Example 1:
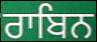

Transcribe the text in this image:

ਰਾਬਿਨ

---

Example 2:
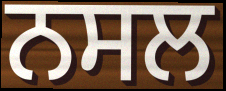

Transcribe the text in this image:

ਨਸਲ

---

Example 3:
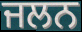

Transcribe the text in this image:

ਜਲਨ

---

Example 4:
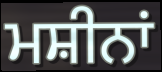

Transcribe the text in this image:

ਮਸ਼ੀਨਾਂ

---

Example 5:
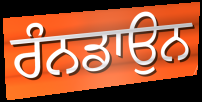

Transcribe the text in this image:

ਰੰਨਡਾਉਨ